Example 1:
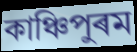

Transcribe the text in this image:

কাঞ্চিপুৰম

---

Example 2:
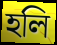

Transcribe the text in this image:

হলি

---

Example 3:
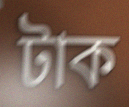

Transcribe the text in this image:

টাক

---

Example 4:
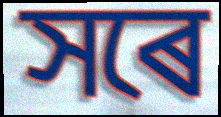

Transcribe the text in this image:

সৰে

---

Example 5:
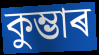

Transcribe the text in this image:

কুম্ভাৰ